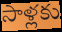
సాళ్లకు